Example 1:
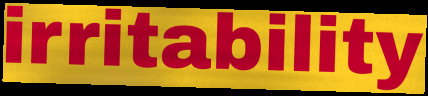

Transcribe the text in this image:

irritability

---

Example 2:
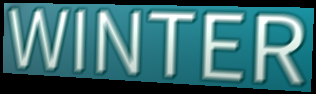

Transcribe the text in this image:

WINTER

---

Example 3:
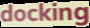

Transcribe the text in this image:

docking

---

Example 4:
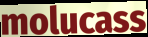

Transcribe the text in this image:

molucass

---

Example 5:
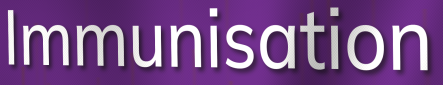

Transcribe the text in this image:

Immunisation